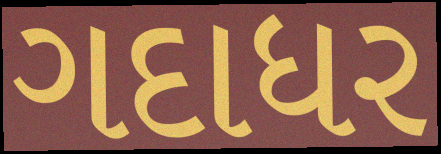
ગદાધર